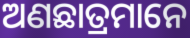
ଅଣଛାତ୍ରମାନେ